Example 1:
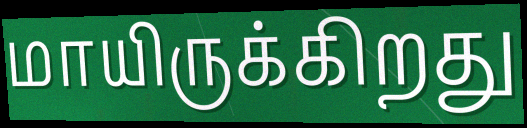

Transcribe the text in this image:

மாயிருக்கிறது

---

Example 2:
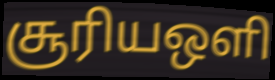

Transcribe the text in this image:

சூரியஒளி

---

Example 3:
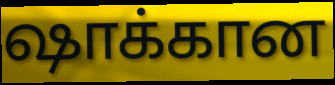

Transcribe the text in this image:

ஷாக்கான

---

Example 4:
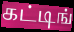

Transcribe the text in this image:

கட்டிங்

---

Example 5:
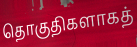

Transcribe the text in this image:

தொகுதிகளாகத்